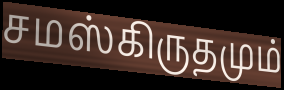
சமஸ்கிருதமும்